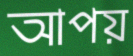
আপয়